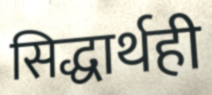
सिद्धार्थही